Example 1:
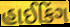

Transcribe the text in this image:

હાઈકિંગ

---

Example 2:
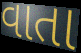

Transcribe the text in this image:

વાતા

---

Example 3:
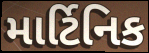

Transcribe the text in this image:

માર્ટિનિક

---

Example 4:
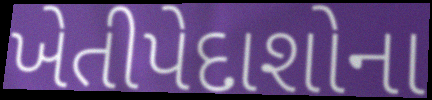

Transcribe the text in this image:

ખેતીપેદાશોના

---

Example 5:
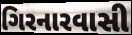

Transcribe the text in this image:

ગિરનારવાસી